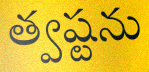
త్వష్టను